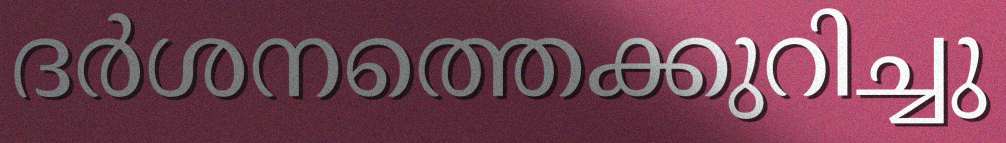
ദർശനത്തെക്കുറിച്ചു